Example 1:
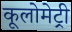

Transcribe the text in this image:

कूलोमेट्री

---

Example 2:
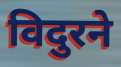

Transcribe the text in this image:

विदुरने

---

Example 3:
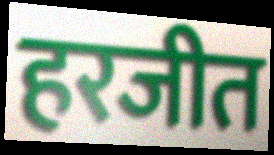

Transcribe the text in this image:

हरजीत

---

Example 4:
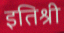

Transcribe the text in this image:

इतिश्री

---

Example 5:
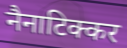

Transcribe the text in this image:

नैनाटिक्कर